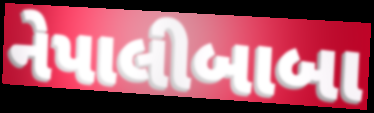
નેપાલીબાબા